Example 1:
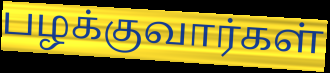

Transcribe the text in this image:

பழக்குவார்கள்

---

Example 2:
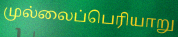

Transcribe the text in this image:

முல்லைப்பெரியாறு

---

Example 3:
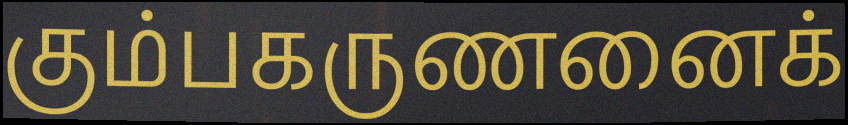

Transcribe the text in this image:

கும்பகருணனைக்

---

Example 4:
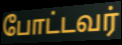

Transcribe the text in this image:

போட்டவர்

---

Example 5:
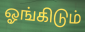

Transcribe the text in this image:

ஓங்கிடும்